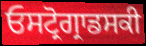
ਓਸਟ੍ਰੋਗ੍ਰਾਡਸਕੀ